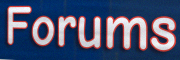
Forums